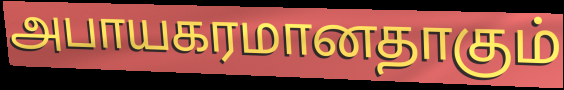
அபாயகரமானதாகும்